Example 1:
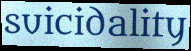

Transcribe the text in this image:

suicidality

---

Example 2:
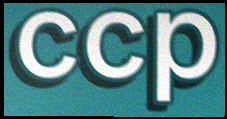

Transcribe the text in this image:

ccp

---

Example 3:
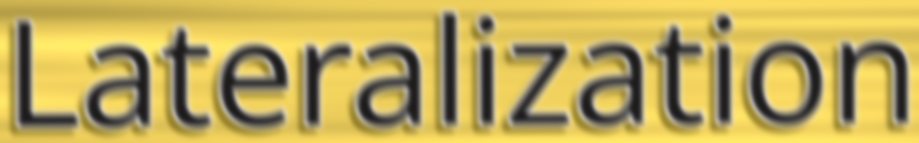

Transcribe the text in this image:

Lateralization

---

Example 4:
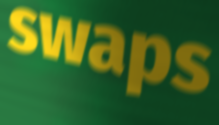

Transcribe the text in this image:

swaps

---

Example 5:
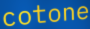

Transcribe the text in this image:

cotone